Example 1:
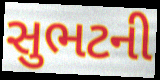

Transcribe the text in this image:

સુભટની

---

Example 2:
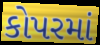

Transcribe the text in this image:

કોપરમાં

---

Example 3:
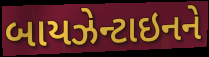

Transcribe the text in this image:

બાયઝેન્ટાઇનને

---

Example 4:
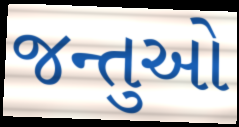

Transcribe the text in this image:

જન્તુઓ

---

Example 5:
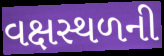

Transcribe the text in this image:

વક્ષસ્થળની